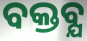
ବକ୍ତବ୍ଯ